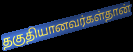
தகுதியானவர்கள்தான்